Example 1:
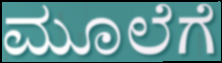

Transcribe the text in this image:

ಮೂಲೆಗೆ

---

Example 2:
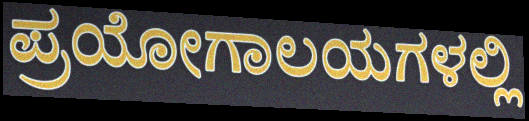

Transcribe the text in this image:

ಪ್ರಯೋಗಾಲಯಗಳಲ್ಲಿ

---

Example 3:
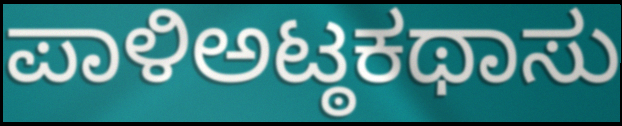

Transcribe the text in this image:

ಪಾಳಿಅಟ್ಠಕಥಾಸು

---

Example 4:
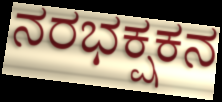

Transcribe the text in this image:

ನರಭಕ್ಷಕನ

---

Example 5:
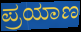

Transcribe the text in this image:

ಪ್ರಯಾಣ